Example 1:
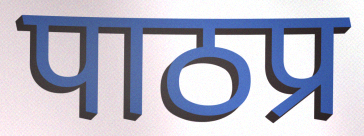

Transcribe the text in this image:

पाठप्र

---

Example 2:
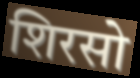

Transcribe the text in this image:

शिरसो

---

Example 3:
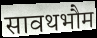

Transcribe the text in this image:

सावथभौम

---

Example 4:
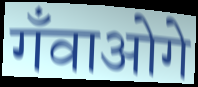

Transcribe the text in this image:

गँवाओगे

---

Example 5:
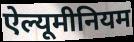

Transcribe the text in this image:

ऐल्यूमीनियम